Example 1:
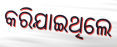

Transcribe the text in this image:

କରିଯାଇଥିଲେ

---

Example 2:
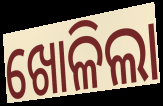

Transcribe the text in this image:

ଖୋଳିଲା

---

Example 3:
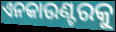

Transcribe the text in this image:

ଏନକାଉଣ୍ଟରକୁ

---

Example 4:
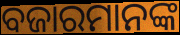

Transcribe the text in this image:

ବଜାରମାନଙ୍କ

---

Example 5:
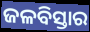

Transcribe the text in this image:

ଜଳବିସ୍ତାର